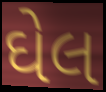
ઘેલ